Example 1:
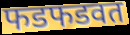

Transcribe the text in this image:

फडफडवत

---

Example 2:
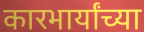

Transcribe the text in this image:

कारभार्यांच्या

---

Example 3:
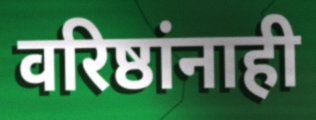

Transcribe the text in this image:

वरिष्ठांनाही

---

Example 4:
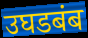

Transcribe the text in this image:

उघडबंब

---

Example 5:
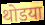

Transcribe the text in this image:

थोडया